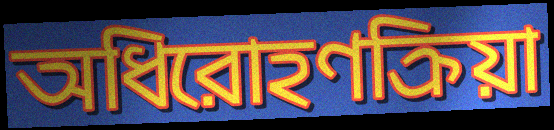
অধিরোহণক্রিয়া